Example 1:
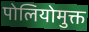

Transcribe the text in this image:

पोलियोमुक्त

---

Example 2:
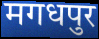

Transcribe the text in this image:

मगधपुर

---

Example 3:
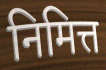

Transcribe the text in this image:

निमित्त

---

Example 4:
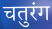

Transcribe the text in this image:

चतुरंग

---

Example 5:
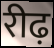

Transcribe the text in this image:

रीढ़